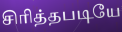
சிரித்தபடியே